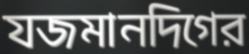
যজমানদিগের